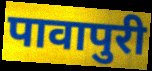
पावापुरी